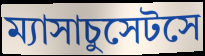
ম্যাসাচুসেটসে